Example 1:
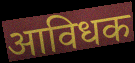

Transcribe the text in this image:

आविधक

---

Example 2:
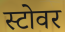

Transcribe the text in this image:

स्टोवर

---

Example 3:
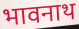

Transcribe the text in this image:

भावनाथ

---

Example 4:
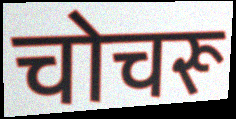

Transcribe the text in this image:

चोचरू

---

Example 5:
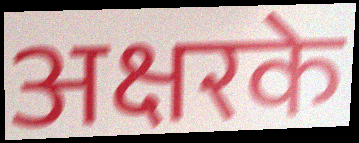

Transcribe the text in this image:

अक्षरके